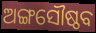
ଅଙ୍ଗସୌଷ୍ଠବ